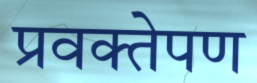
प्रवक्तेपण